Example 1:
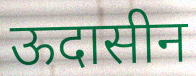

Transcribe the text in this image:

ऊदासीन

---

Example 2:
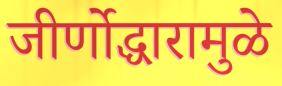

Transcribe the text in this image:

जीर्णोद्धारामुळे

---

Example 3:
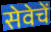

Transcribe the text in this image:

सेवेचें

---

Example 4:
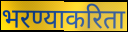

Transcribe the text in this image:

भरण्याकरिता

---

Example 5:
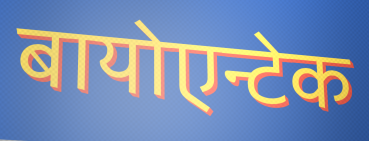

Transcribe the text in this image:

बायोएन्टेक